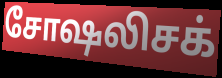
சோஷலிசக்